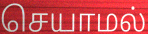
செயாமல்